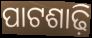
ପାଟଶାଢ଼ି